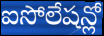
ఐసోలేషన్లో